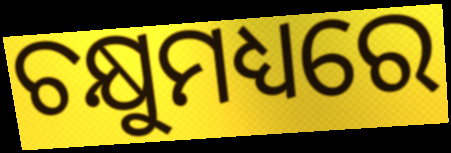
ଚକ୍ଷୁମଧ୍ଯରେ